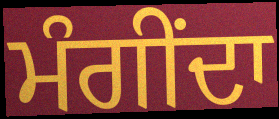
ਮੰਗੀਂਦਾ